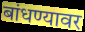
बांधण्यावर